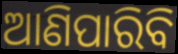
ଆଣିପାରିବି